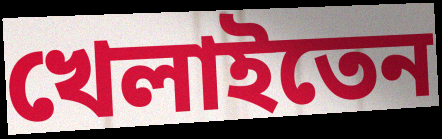
খেলাইতেন